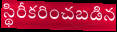
స్థిరీకరించబడిన